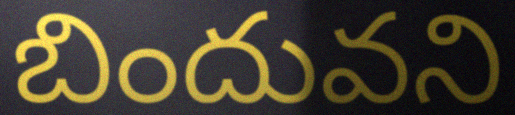
బిందువని